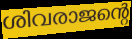
ശിവരാജന്റെ